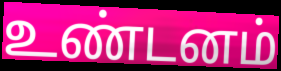
உண்டனம்